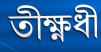
তীক্ষ্ণধী